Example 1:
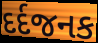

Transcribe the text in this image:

દર્દજનક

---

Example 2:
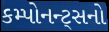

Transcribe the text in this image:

કમ્પોનન્ટ્સનો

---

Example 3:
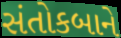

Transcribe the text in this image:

સંતોકબાને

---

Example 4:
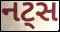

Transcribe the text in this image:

નટ્સ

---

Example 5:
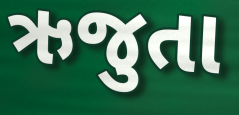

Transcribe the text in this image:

ઋજુતા